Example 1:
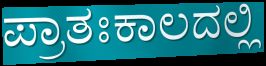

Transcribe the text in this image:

ಪ್ರಾತಃಕಾಲದಲ್ಲಿ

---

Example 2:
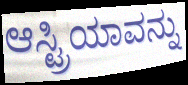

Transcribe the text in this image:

ಆಸ್ಟ್ರಿಯಾವನ್ನು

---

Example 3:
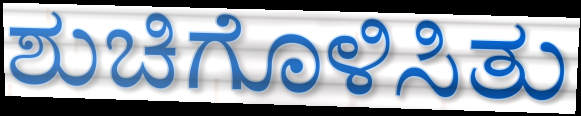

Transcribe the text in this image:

ಶುಚಿಗೊಳಿಸಿತು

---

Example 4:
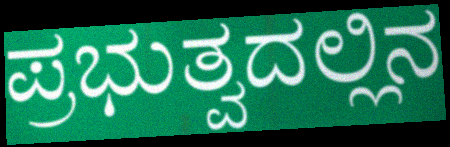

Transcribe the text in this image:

ಪ್ರಭುತ್ವದಲ್ಲಿನ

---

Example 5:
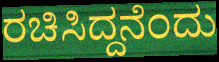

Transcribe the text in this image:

ರಚಿಸಿದ್ದನೆಂದು